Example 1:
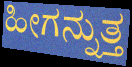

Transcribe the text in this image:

ಹೀಗನ್ನುತ್ತ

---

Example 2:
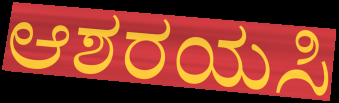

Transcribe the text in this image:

ಆಶರಯಸಿ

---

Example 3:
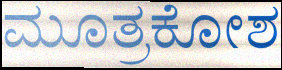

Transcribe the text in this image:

ಮೂತ್ರಕೋಶ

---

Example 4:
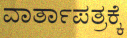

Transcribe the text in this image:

ವಾರ್ತಾಪತ್ರಕ್ಕೆ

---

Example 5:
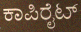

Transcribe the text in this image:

ಕಾಪಿರೈಟ್